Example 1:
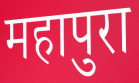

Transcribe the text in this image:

महापुरा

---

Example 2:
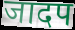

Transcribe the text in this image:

जादप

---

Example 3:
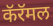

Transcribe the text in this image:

कॅरॅमल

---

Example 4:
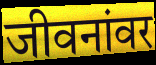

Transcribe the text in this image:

जीवनांवर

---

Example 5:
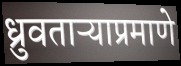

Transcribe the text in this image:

ध्रुवताऱ्याप्रमाणे